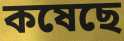
কষেছে